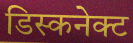
डिस्कनेक्ट